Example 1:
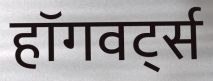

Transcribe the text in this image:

हॉगवर्ट्स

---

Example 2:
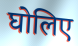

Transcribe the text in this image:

घोलिए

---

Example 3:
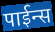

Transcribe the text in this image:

पाईन्स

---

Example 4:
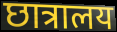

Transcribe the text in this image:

छात्रालय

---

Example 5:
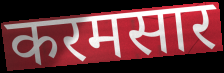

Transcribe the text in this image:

करमसार